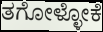
ತಗೋಳ್ಳೋಕೆ